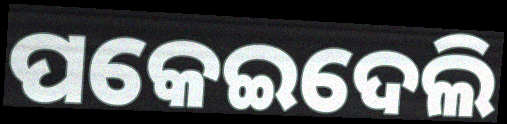
ପକେଇଦେଲି